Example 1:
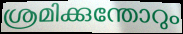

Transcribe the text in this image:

ശ്രമിക്കുന്തോറും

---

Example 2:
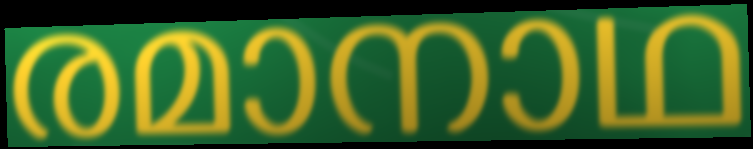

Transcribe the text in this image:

രമാനാഥ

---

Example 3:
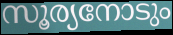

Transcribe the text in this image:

സൂര്യനോടും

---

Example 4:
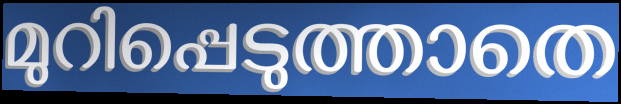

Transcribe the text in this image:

മുറിപ്പെടുത്താതെ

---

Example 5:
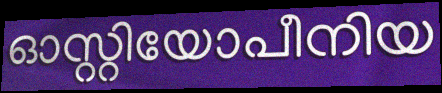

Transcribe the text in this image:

ഓസ്റ്റിയോപീനിയ